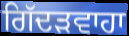
ਗਿੱਦੜਵਾਹਾ